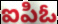
ఐపిఓ